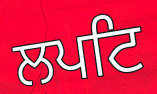
ਲਪਟਿ